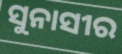
ସୁନାସୀର